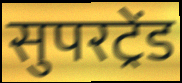
सुपरट्रेंड